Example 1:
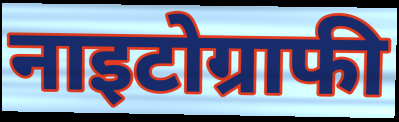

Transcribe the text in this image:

नाइटोग्राफी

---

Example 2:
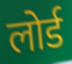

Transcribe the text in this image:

लोर्ड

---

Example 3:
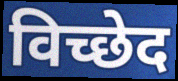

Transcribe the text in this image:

विच्छेद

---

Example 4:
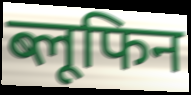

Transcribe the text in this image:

ब्लूफिन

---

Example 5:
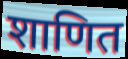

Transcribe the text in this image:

शाणित